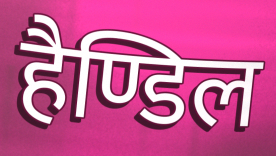
हैण्डिल